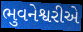
ભુવનેશ્વરીએ